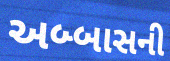
અબ્બાસની